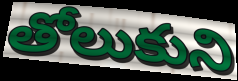
తోలుకుని